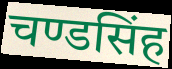
चण्डसिंह